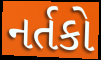
નર્તકો